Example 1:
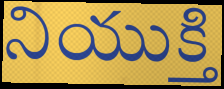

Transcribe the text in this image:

నియుక్తి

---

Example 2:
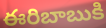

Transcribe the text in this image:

ఈరిబాబుకి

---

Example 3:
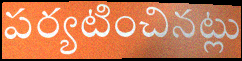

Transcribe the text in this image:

పర్యటించినట్లు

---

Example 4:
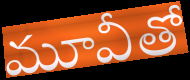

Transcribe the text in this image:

మూవీతో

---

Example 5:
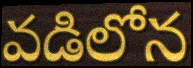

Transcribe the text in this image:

వడిలోన